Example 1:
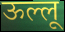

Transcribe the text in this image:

ऊल्लू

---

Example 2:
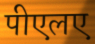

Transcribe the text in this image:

पीएलए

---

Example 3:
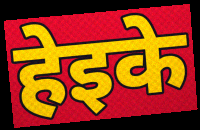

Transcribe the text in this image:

हेइके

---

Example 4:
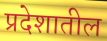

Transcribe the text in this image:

प्रदेशातील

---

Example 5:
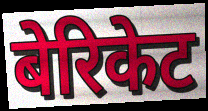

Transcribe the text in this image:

बेरिकेट